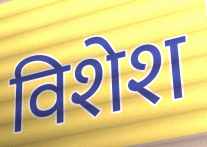
विशेश